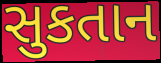
સુકતાન